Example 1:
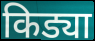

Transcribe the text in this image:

किड्या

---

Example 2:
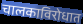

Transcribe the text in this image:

चालकाविरोधात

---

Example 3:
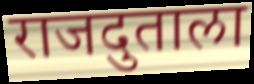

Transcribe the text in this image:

राजदुताला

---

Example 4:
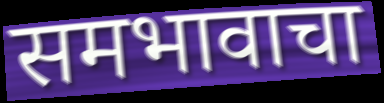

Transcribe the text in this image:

समभावाचा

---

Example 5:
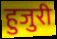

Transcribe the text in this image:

हुजुरी